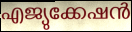
എജ്യുക്കേഷൻ